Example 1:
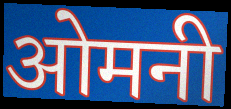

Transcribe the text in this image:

ओमनी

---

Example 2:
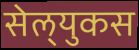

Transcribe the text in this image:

सेल्युकस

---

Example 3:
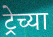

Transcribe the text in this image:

ट्रेच्या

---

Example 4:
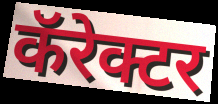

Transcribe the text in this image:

कॅरेक्टर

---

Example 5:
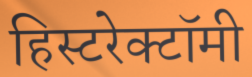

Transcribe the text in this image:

हिस्टरेक्टॉमी